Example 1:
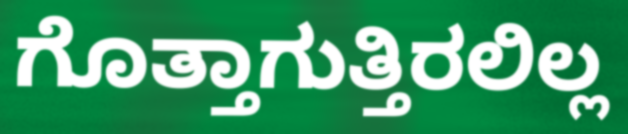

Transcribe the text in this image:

ಗೊತ್ತಾಗುತ್ತಿರಲಿಲ್ಲ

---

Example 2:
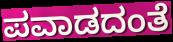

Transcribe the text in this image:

ಪವಾಡದಂತೆ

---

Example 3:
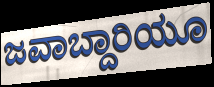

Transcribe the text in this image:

ಜವಾಬ್ದಾರಿಯೂ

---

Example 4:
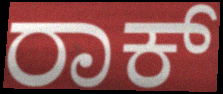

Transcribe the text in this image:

ರಾಕ್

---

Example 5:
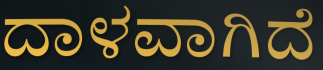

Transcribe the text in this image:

ದಾಳವಾಗಿದೆ